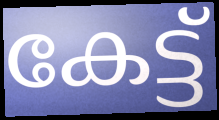
കേട്ട്